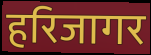
हरिजागर